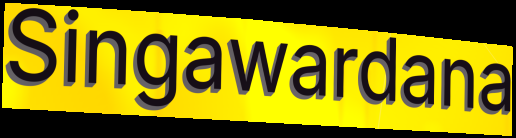
Singawardana